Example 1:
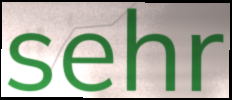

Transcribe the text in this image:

sehr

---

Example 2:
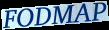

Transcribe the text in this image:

FODMAP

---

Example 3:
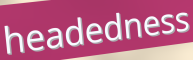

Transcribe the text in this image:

headedness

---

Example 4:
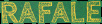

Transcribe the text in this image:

RAFALE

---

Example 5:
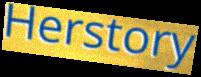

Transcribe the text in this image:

Herstory